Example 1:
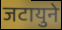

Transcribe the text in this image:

जटायुने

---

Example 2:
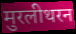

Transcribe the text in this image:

मुरलीथरन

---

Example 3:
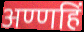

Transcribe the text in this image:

अण्णहिं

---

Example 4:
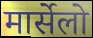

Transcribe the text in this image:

मार्सेलो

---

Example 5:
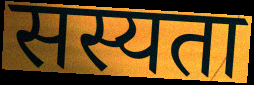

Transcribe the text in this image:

सस्यता